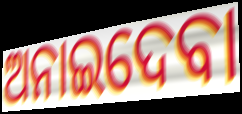
ଅନାଇଦେବା